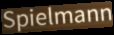
Spielmann